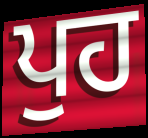
ਪੁਹ